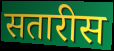
सतारीस